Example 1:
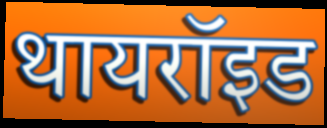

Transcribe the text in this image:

थायरॉइड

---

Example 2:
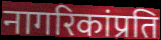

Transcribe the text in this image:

नागरिकांप्रति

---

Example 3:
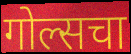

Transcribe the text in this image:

गोल्सचा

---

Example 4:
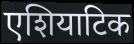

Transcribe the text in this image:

एशियाटिक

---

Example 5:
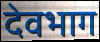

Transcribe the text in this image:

देवभाग